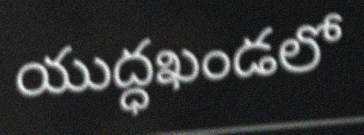
యుద్ధఖండలో